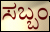
ಸಬ್ಬಂ